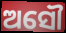
ଅସୌ